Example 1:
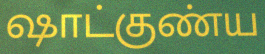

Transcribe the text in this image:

ஷாட்குண்ய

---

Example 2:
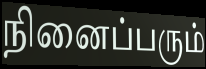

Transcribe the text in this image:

நினைப்பரும்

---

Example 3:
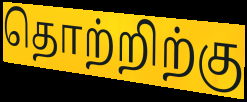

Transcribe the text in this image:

தொற்றிற்கு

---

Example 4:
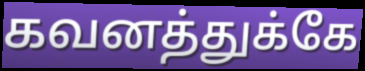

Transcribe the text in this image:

கவனத்துக்கே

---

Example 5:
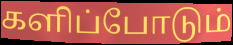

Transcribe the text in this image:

களிப்போடும்